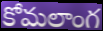
కోమలాంగ